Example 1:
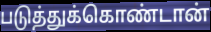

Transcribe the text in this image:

படுத்துக்கொண்டான்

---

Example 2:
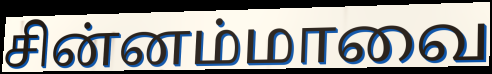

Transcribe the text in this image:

சின்னம்மாவை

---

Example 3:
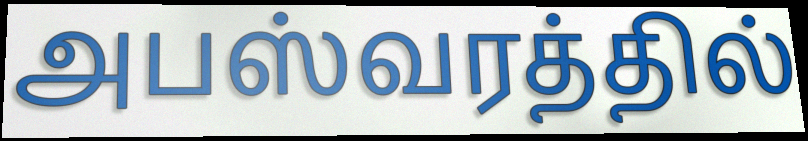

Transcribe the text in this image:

அபஸ்வரத்தில்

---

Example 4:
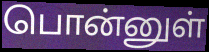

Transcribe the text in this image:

பொன்னுள்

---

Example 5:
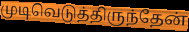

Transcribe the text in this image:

முடிவெடுத்திருந்தேன்